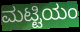
ಮಟ್ಟಿಯಂ